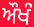
ਔਖੰ